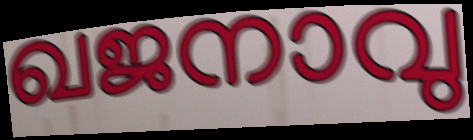
ഖജനാവു